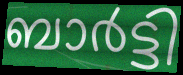
ബാർട്ടി